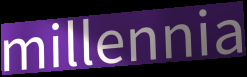
millennia